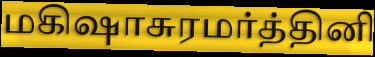
மகிஷாசுரமர்த்தினி